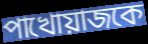
পাখোয়াজকে